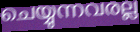
ചെയ്യുന്നവരല്ല